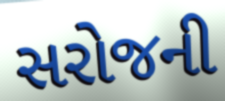
સરોજની